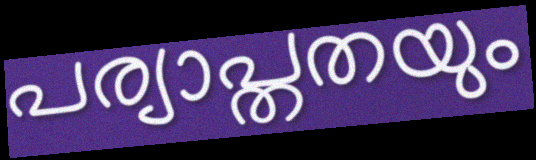
പര്യാപ്തതയും